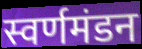
स्वर्णमंडन